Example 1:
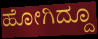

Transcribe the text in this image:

ಹೋಗಿದ್ದೂ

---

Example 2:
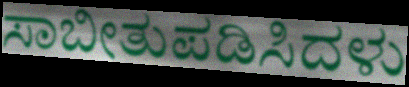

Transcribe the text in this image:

ಸಾಬೀತುಪಡಿಸಿದಳು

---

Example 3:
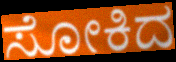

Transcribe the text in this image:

ಸೋಕಿದ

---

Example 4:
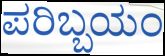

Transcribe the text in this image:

ಪರಿಬ್ಬಯಂ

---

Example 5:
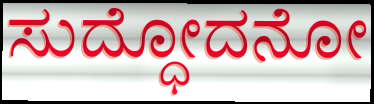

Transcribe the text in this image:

ಸುದ್ಧೋದನೋ